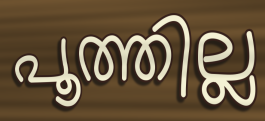
പൂത്തില്ല